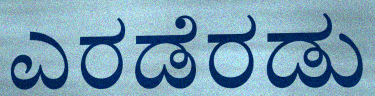
ಎರಡೆರಡು